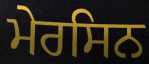
ਮੇਰਸਿਨ